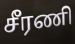
சீரணி